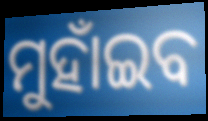
ମୁହାଁଇବ